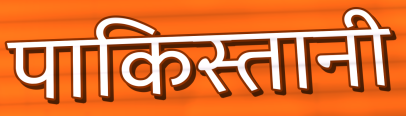
पाकिस्‍तानी